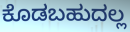
ಕೊಡಬಹುದಲ್ಲ